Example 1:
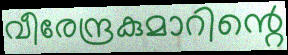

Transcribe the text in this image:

വീരേന്ദ്രകുമാറിന്റെ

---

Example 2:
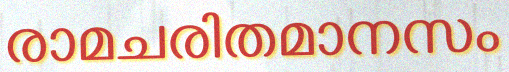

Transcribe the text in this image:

രാമചരിതമാനസം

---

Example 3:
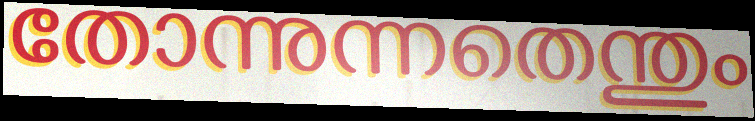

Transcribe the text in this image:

തോന്നുന്നതെന്തും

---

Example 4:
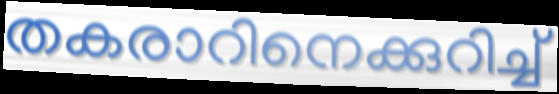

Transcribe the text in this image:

തകരാറിനെക്കുറിച്ച്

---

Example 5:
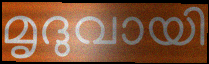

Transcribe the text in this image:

മൃദുവായി